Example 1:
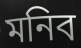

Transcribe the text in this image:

মনিব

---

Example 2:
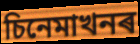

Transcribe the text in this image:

চিনেমাখনৰ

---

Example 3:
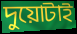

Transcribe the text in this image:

দুয়োটাই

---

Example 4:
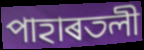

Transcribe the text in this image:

পাহাৰতলী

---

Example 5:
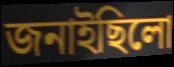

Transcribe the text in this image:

জনাইছিলো